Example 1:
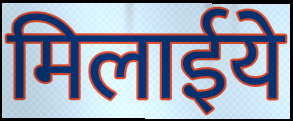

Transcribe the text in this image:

मिलाईये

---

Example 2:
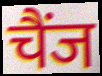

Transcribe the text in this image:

चैंज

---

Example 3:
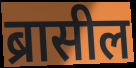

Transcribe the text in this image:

ब्रासील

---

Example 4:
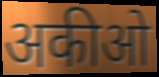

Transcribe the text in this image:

अकीओ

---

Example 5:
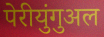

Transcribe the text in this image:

पेरीयुंगुअल